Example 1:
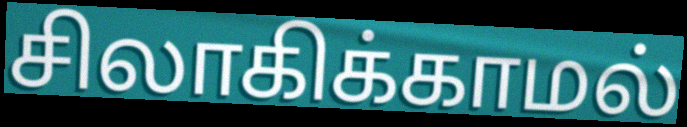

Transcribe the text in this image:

சிலாகிக்காமல்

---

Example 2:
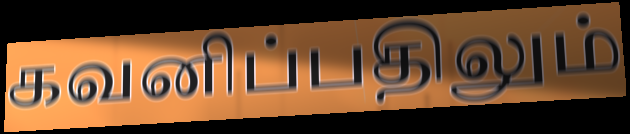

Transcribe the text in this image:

கவனிப்பதிலும்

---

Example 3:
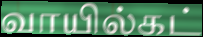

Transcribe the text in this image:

வாயில்கட்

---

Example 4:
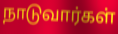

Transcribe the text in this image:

நாடுவார்கள்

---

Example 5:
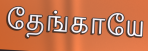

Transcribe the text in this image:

தேங்காயே